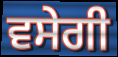
ਵਸੇਗੀ